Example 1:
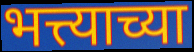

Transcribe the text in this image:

भत्त्याच्या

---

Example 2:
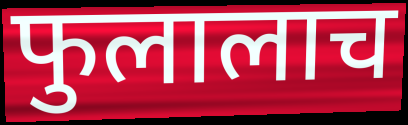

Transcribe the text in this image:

फुलालाच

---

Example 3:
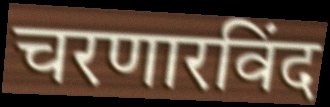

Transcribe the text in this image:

चरणारविंद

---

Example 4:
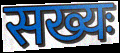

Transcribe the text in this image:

सख्यः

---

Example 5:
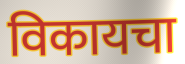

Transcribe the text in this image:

विकायचा